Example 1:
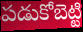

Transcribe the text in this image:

పడుకోబెట్టి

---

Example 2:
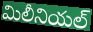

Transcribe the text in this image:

మిలీనియల్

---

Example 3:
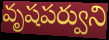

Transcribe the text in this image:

వృషపర్వుని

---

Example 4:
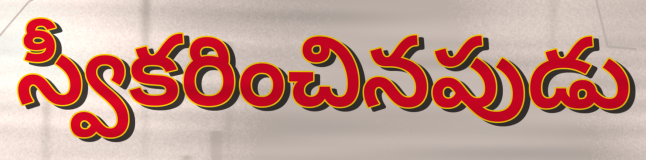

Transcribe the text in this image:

స్వీకరించినపుడు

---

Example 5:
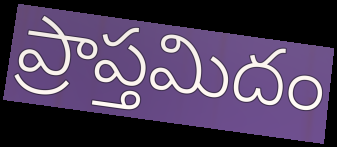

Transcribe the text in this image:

ప్రాప్తమిదం